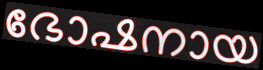
ഭോഷനായ